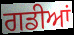
ਗਡੀਆਂ